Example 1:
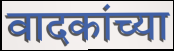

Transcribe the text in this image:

वादकांच्या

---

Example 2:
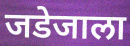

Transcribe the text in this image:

जडेजाला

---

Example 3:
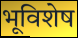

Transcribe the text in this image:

भूविशेष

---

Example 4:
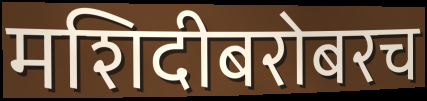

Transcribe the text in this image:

मशिदीबरोबरच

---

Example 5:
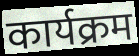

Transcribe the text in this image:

कार्यक्रम